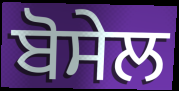
ਬੋਸੇਲ